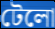
টেলো